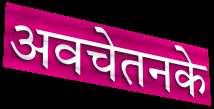
अवचेतनके